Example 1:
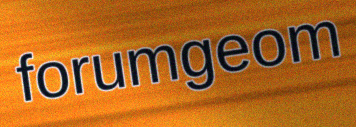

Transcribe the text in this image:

forumgeom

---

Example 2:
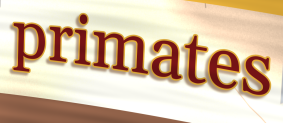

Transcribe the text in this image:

primates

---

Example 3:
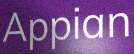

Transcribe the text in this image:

Appian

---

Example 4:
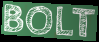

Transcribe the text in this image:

BOLT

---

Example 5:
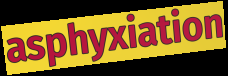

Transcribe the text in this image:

asphyxiation